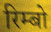
रिम्बो